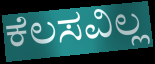
ಕೆಲಸವಿಲ್ಲ